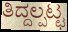
ತಿದ್ದಲ್ಪಟ್ಟ